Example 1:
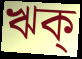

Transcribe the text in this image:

ঋক্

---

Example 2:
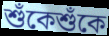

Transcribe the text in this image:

শুঁকেশুঁকে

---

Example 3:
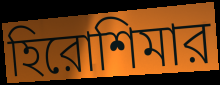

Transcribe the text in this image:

হিরোশিমার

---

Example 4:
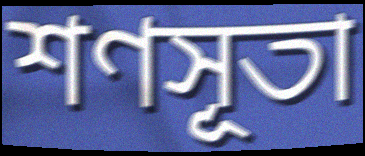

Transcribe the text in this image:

শণসূতা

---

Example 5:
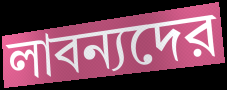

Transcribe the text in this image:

লাবন্যদের